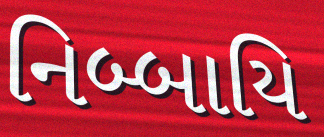
નિબ્બાયિ